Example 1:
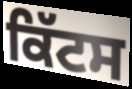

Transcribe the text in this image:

ਕਿੱਟਸ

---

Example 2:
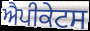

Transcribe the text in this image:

ਐਪੀਕੇਟਸ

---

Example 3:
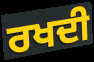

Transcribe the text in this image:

ਰਖਦੀ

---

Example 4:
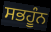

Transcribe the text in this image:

ਸਭਹੂੰਨ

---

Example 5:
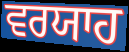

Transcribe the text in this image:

ਵਰਯਾਹ